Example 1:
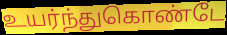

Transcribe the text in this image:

உயர்ந்துகொண்டே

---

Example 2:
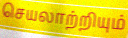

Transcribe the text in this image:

செயலாற்றியும்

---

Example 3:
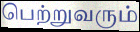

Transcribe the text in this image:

பெற்றுவரும்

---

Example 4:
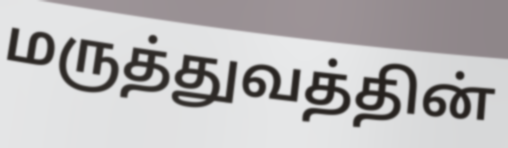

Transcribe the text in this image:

மருத்துவத்தின்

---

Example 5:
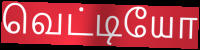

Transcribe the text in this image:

வெட்டியோ